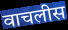
वाचलीस